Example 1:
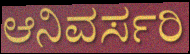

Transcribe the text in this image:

ಆನಿವರ್ಸರಿ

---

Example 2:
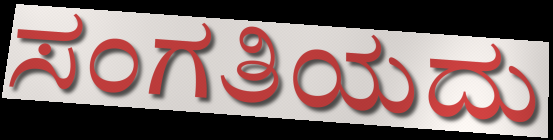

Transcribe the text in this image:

ಸಂಗತಿಯದು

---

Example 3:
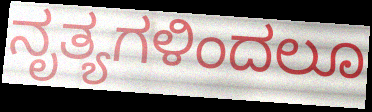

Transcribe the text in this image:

ನೃತ್ಯಗಳಿಂದಲೂ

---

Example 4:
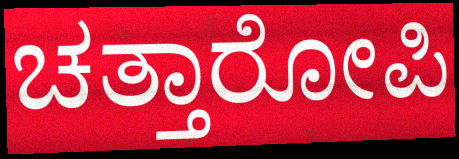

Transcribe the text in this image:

ಚತ್ತಾರೋಪಿ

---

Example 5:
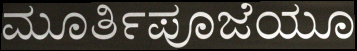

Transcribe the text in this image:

ಮೂರ್ತಿಪೂಜೆಯೂ